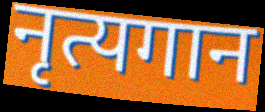
नृत्यगान